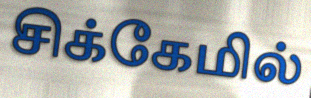
சிக்கேமில்